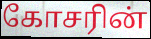
கோசரின்